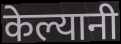
केल्यानी